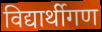
विद्यार्थीगण